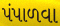
પંપાળવા